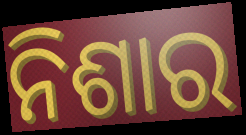
ନିଶାର